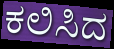
ಕಲಿಸಿದ